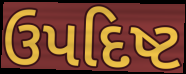
ઉપદિષ્ટ